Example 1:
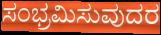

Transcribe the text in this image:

ಸಂಭ್ರಮಿಸುವುದರ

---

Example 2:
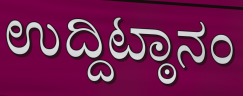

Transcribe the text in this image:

ಉದ್ದಿಟ್ಠಾನಂ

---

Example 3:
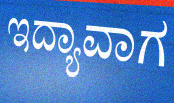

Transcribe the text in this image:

ಇದ್ಯಾವಾಗ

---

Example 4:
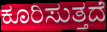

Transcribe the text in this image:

ಕೂರಿಸುತ್ತದೆ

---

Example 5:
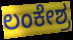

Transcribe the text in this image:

ಲಂಕೇಶ್ರ